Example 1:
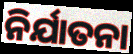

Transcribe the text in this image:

ନିର୍ଯାତନା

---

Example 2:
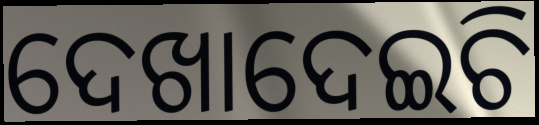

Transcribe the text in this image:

ଦେଖାଦେଇଚି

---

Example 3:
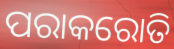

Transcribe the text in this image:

ପରାକରୋତି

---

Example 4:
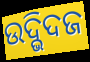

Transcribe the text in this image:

ଉଦ୍ଭିଦଜ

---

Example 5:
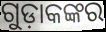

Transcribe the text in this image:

ଗୁଡ଼ାକଙ୍କର